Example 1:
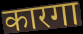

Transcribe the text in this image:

कारगा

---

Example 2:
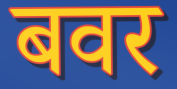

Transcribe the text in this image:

बवर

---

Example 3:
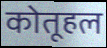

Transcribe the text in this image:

कोतूहल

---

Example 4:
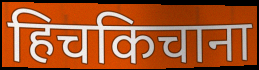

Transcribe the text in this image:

हिचकिचाना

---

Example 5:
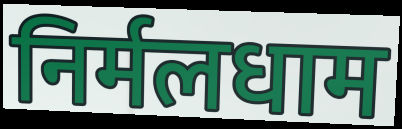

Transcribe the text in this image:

निर्मलधाम